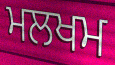
ਮਲਖਮ